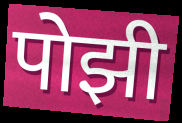
पोझी